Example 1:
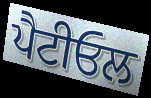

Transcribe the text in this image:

ਪੈਟੀਓਲ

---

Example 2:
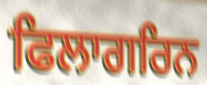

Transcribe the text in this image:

ਫਿਲਾਗਰਿਨ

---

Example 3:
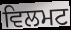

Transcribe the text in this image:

ਵਿਲਮਟ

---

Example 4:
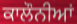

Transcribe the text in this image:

ਕਾਲੌਨੀਆਂ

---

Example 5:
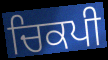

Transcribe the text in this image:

ਚਿਕਪੀ